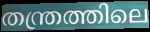
തന്ത്രത്തിലെ